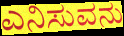
ಎನಿಸುವನು